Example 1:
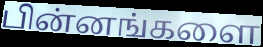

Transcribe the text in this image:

பின்னங்களை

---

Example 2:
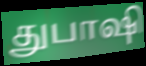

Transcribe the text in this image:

துபாஷி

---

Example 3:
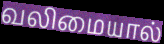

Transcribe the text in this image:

வலிமையால்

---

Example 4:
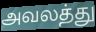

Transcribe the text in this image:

அவலத்து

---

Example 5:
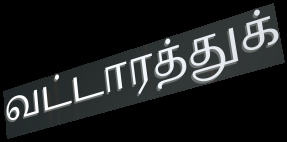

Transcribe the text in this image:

வட்டாரத்துக்